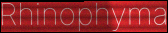
Rhinophyma